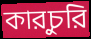
কারচুরি